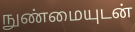
நுண்மையுடன்